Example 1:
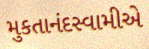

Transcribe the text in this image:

મુકતાનંદસ્વામીએ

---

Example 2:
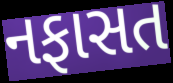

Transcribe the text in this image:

નફાસત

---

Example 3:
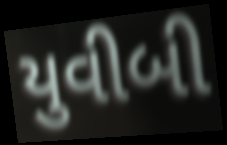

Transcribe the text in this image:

યુવીબી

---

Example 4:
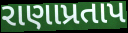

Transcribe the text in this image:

રાણાપ્રતાપ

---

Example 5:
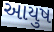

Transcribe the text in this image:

આયુષ